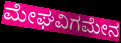
ಮೇಘವಿಗಮೇನ